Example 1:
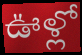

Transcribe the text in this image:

ఊళ్లో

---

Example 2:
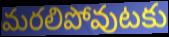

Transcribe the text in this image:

మరలిపోవుటకు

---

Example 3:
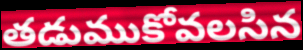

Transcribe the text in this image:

తడుముకోవలసిన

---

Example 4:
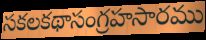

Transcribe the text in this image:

సకలకథాసంగ్రహసారము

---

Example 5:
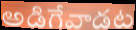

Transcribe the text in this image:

అడిగేవాడట